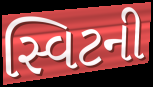
સ્વિટની